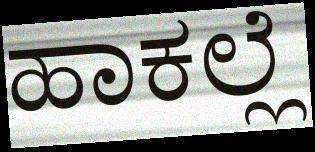
ಹಾಕಲ್ಲೆ